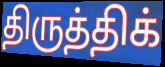
திருத்திக்